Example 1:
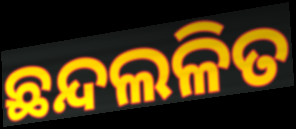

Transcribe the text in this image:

ଛନ୍ଦଲଳିତ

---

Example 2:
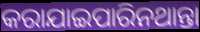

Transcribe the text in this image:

କରାଯାଇପାରିନଥାନ୍ତା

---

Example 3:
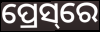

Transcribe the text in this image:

ପ୍ରେସ୍‌ରେ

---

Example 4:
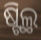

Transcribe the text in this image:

ଷ୍ଟିଲ୍ଥ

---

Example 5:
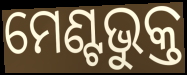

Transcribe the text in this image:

ମେଣ୍ଟଭୁକ୍ତ